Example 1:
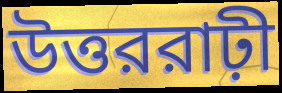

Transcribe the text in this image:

উত্তররাঢ়ী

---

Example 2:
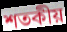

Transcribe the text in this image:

শতকীয়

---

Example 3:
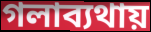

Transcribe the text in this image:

গলাব্যথায়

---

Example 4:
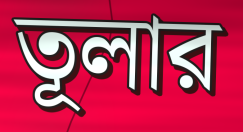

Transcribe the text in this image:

তূলার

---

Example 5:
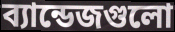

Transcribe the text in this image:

ব্যান্ডেজগুলো